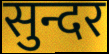
सुन्दर